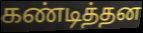
கண்டித்தன